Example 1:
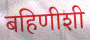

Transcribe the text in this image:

बहिणीशी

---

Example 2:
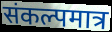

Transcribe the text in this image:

संकल्पमात्र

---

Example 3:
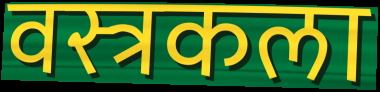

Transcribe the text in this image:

वस्त्रकला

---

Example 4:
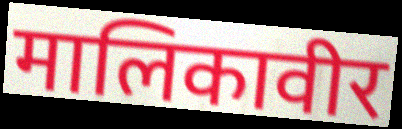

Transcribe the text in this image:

मालिकावीर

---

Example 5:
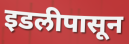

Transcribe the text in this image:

इडलीपासून